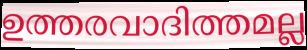
ഉത്തരവാദിത്തമല്ല